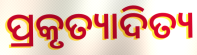
ପ୍ରକୃତ୍ୟାଦିତ୍ୟ